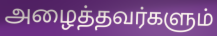
அழைத்தவர்களும்